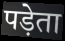
पड़ेता